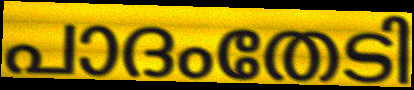
പാദംതേടി